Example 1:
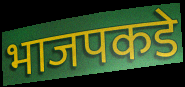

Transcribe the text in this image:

भाजपकडे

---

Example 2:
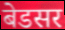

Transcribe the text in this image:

बेडसर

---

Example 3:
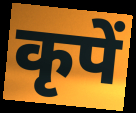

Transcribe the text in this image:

कृपें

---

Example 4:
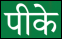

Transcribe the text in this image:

पीके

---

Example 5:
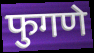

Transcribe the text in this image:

फुगणे